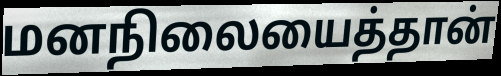
மனநிலையைத்தான்